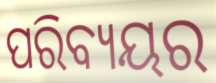
ପରିବ୍ୟୟର